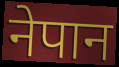
नेपान